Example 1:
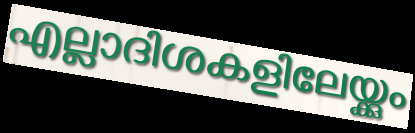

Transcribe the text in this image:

എല്ലാദിശകളിലേയ്ക്കും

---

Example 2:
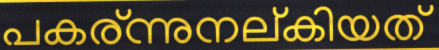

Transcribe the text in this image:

പകര്ന്നുനല്കിയത്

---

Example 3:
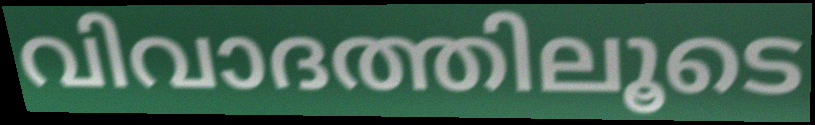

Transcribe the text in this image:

വിവാദത്തിലൂടെ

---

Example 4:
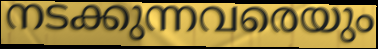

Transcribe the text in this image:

നടക്കുന്നവരെയും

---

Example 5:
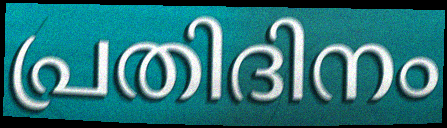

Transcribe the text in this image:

പ്രതിദിനം